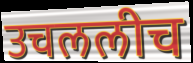
उचललीच